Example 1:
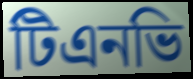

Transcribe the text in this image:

টিএনভি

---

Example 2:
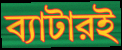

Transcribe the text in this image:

ব্যাটারই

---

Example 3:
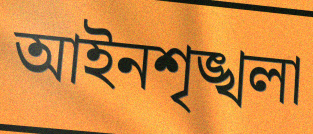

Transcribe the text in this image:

আইনশৃঙ্খলা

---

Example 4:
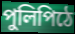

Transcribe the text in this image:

পুলিপিঠে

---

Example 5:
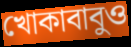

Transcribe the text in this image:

খোকাবাবুও